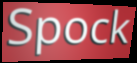
Spock